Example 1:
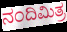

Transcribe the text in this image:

ನಂದಿಮಿತ್ರ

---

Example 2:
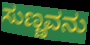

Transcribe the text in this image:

ಸುಣ್ಣವನು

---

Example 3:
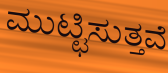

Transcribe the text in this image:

ಮುಟ್ಟಿಸುತ್ತವೆ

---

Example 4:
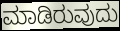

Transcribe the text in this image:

ಮಾಡಿರುವುದು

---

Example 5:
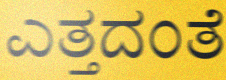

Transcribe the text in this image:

ಎತ್ತದಂತೆ